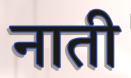
नाती